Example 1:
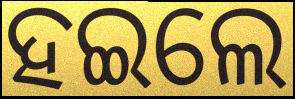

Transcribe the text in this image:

ହଇଲେ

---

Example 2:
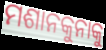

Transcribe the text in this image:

ମଶାନକୁନାକୁ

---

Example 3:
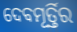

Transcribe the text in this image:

ଦେବମୂର୍ତ୍ତିର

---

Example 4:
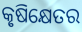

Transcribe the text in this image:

କୃଷିକ୍ଷେତର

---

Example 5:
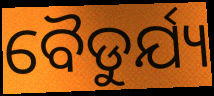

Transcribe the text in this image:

ବୈଡୁର୍ଯ୍ୟ